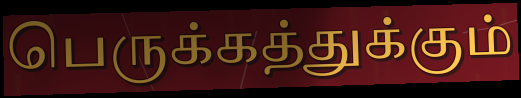
பெருக்கத்துக்கும்